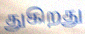
துகிறது